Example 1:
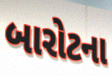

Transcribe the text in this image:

બારોટના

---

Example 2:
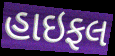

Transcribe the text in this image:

હાઇફલ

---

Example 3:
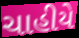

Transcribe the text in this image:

ચાહીયે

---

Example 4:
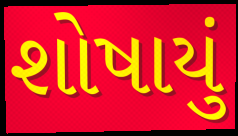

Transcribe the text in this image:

શોષાયું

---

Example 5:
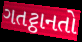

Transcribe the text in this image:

ગતટ્ઠાનતો